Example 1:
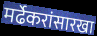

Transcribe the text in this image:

मर्ढेकरांसारखा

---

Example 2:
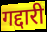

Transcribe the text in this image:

गद्दारी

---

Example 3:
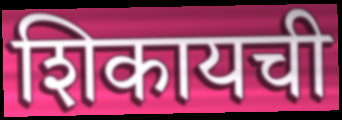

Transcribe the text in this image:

शिकायची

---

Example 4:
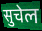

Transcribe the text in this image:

सुचेल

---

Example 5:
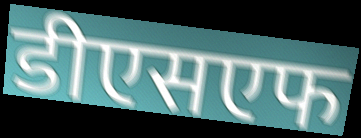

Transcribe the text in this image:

डीएसएफ